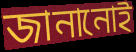
জানানোই